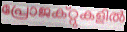
പ്രോജക്റ്റുകളിൽ